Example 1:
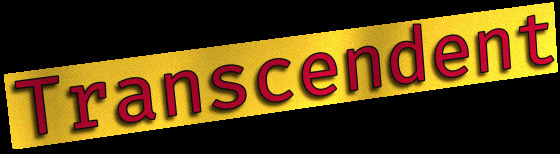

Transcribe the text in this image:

Transcendent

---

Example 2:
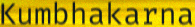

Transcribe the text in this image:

Kumbhakarna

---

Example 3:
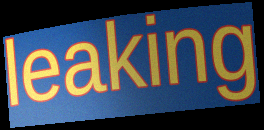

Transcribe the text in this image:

leaking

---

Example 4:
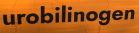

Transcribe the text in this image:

urobilinogen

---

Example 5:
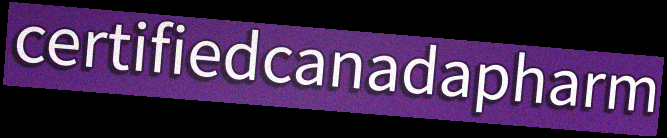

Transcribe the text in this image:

certifiedcanadapharm